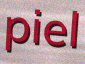
piel